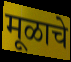
मूळाचे